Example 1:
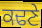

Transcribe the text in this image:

ਕਢਣੇ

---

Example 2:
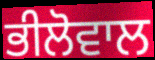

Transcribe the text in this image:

ਭੀਲੋਵਾਲ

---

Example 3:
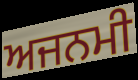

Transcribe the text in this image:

ਅਜਨਮੀ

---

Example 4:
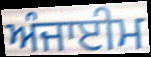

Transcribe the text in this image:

ਅੰਜਾਈਮ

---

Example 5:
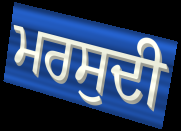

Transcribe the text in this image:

ਮਰਸੁਦੀ